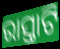
ରାସ୍ତାଟି